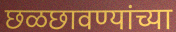
छळछावण्यांच्या